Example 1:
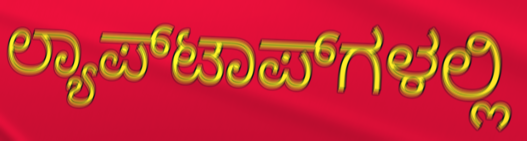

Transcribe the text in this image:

ಲ್ಯಾಪ್‌ಟಾಪ್‌ಗಳಲ್ಲಿ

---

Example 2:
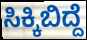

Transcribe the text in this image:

ಸಿಕ್ಕಿಬಿದ್ದೆ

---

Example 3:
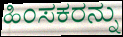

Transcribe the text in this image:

ಹಿಂಸಕರನ್ನು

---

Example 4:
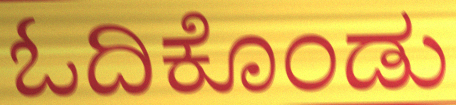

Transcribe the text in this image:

ಓದಿಕೊಂಡು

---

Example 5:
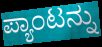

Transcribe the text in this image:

ಪ್ಯಾಂಟನ್ನು